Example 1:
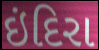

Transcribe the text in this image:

ઇંદિરા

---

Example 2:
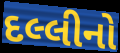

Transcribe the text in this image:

દલ્લીનો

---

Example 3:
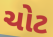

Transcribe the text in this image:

ચોટ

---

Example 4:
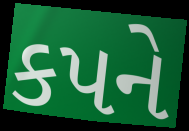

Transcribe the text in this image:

કપને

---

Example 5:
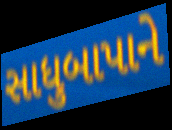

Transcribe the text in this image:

સાધુબાપાને